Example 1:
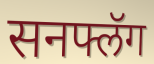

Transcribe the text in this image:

सनफ्लॅग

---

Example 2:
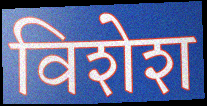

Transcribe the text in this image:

विशेश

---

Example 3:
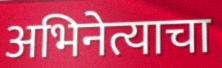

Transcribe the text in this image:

अभिनेत्याचा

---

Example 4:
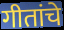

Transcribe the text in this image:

गीतांचे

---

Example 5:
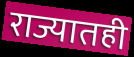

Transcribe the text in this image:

राज्यातही